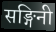
सङ्गिनी